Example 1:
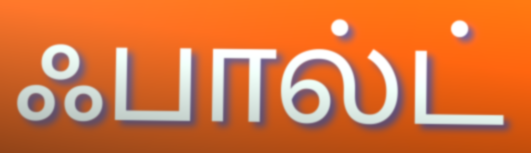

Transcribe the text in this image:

ஃபால்ட்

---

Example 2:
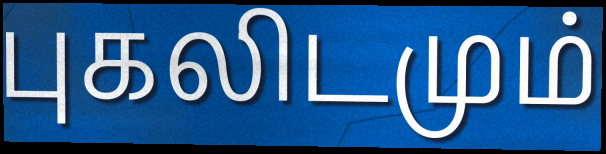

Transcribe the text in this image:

புகலிடமும்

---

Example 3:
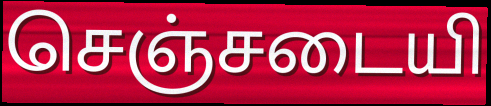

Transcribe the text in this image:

செஞ்சடையி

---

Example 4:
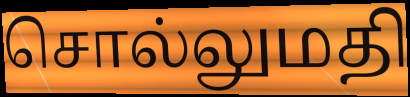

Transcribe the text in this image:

சொல்லுமதி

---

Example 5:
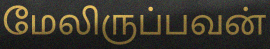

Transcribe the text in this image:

மேலிருப்பவன்